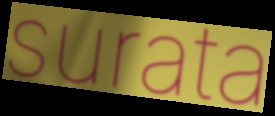
surata